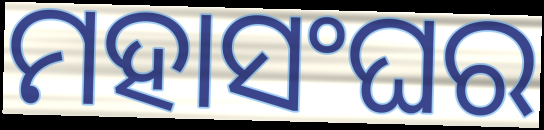
ମହାସଂଘର